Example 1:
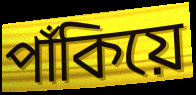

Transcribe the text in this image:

পাঁকিয়ে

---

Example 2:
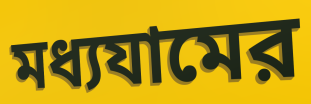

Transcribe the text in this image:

মধ্যযামের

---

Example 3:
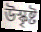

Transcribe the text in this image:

উস্কৃষ্ট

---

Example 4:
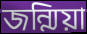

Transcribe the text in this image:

জন্মিয়া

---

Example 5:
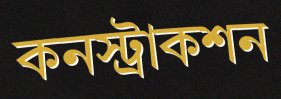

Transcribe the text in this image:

কনস্ট্রাকশন